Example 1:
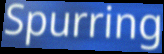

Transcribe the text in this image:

Spurring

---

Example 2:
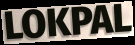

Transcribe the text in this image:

LOKPAL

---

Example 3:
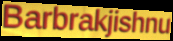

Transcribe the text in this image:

Barbrakjishnu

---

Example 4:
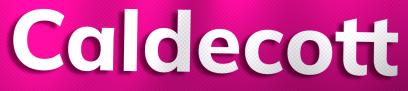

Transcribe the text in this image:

Caldecott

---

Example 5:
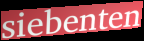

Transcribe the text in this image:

siebenten